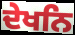
ਦੇਖਨਿ